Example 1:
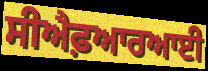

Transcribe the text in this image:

ਸੀਐਫ਼ਆਰਆਈ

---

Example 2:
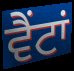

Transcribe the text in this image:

ਵੈਂਟਾਂ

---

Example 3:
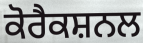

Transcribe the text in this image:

ਕੋਰੈਕਸ਼ਨਲ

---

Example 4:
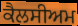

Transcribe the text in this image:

ਕੈਲਸੀਅਮ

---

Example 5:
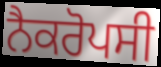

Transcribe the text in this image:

ਨੈਕਰੋਪਸੀ